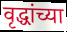
वृद्धांच्या